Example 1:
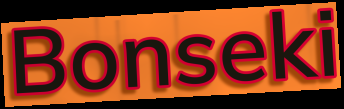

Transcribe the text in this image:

Bonseki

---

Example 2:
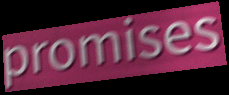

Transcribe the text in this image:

promises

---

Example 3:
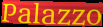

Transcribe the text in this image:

Palazzo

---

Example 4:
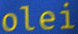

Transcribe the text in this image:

olei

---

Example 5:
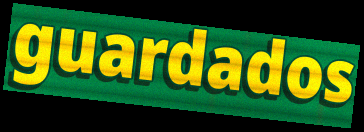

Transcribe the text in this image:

guardados